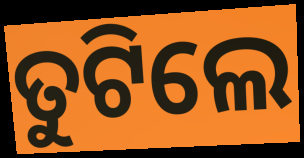
ତୁଟିଲେ